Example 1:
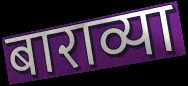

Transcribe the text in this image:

बाराव्या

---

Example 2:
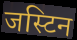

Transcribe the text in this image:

जस्टिन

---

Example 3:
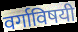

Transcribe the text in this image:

वर्गाविषयी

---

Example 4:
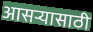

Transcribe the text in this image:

आसऱ्यासाठी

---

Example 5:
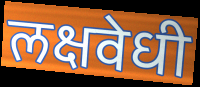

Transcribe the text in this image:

लक्षवेधी